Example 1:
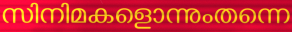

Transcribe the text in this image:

സിനിമകളൊന്നുംതന്നെ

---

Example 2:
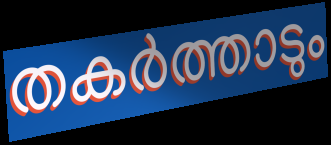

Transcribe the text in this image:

തകർത്താടും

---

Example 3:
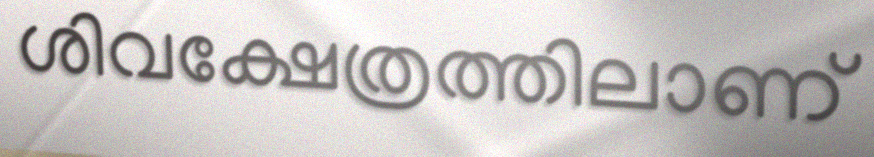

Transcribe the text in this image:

ശിവക്ഷേത്രത്തിലാണ്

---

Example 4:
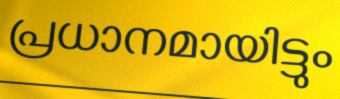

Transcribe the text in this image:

പ്രധാനമായിട്ടും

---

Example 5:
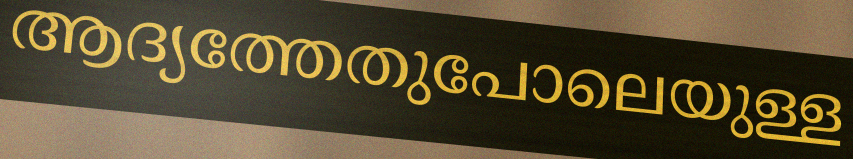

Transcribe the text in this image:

ആദ്യത്തേതുപോലെയുള്ള